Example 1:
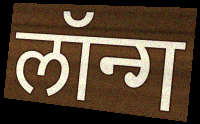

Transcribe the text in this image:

लॉन्ग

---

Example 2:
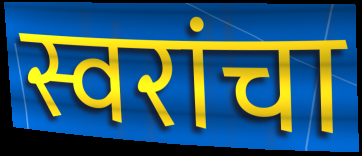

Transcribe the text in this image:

स्वरांचा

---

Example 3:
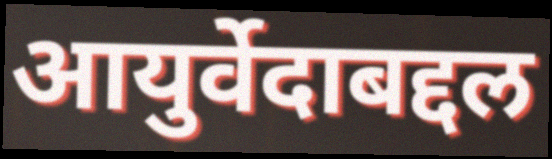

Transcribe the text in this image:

आयुर्वेदाबद्दल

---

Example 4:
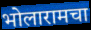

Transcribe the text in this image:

भोलारामचा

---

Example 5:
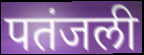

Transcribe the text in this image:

पतंजली